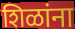
शिळांना